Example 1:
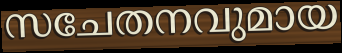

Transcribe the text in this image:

സചേതനവുമായ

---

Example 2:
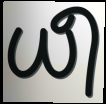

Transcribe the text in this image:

ധീ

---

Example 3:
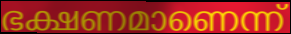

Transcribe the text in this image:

ഭക്ഷണമാണെന്ന്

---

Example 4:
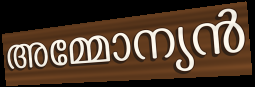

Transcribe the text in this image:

അമ്മോന്യൻ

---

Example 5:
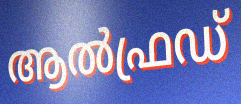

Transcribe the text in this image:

ആൽഫ്രഡ്